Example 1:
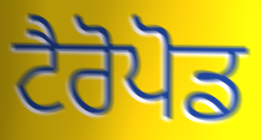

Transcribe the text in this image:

ਟੈਰੋਪੋਡ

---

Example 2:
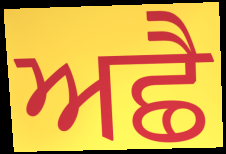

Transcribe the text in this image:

ਅਛੈ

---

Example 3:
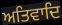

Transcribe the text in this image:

ਅਤਿਵਾਦਿ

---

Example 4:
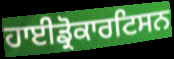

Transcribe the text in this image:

ਹਾਈਡ੍ਰੋਕਾਰਟਿਸਨ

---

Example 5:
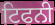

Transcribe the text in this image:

ਟਿਫਨੀ